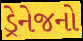
ડ્રેનેજનો